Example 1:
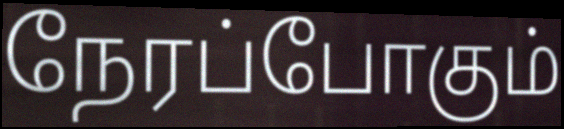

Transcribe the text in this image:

நேரப்போகும்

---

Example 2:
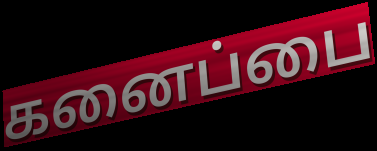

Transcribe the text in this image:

கனைப்பை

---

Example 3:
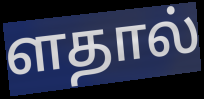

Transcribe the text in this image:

ளதால்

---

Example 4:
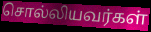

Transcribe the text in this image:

சொல்லியவர்கள்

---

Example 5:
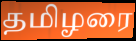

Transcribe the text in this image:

தமிழரை